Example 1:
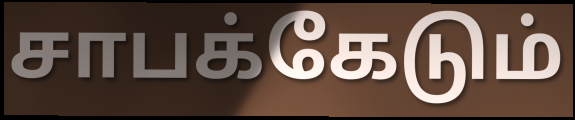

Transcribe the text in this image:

சாபக்கேடும்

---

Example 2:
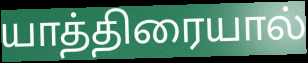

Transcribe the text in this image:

யாத்திரையால்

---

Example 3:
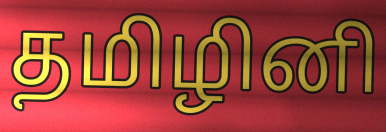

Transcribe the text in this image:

தமிழினி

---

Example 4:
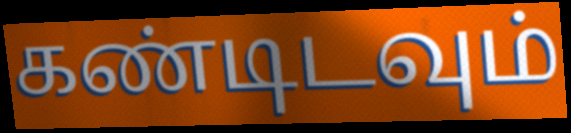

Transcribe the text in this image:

கண்டிடவும்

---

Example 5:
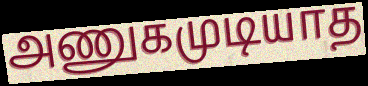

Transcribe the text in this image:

அணுகமுடியாத